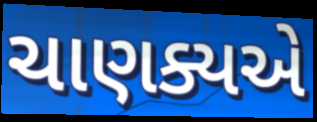
ચાણક્યએ